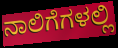
ನಾಲಿಗೆಗಳಲ್ಲಿ